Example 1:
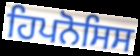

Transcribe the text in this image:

ਹਿਪਨੋਸਿਸ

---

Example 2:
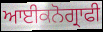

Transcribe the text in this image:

ਆਈਕਨੋਗ੍ਰਾਫੀ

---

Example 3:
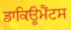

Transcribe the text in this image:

ਡਾਕਿਊਮੈਂਟਸ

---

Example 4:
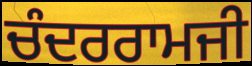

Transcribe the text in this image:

ਚੰਦਰਰਾਮਜੀ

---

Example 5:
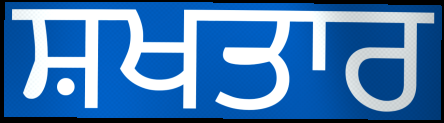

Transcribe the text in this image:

ਸ਼ਖਤਾਰ